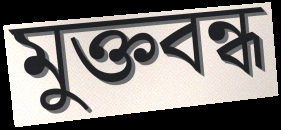
মুক্তবন্ধ